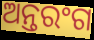
ଅନ୍ତରଂଗ